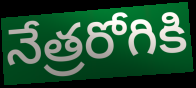
నేత్రరోగికి